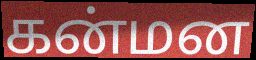
கன்மன